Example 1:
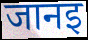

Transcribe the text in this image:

जानइ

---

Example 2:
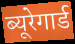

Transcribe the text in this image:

ब्यूरेगार्ड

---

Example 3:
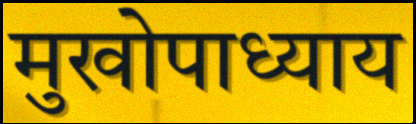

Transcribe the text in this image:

मुखोपाध्‍याय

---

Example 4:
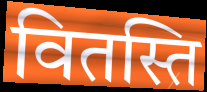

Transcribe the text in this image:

वितस्ति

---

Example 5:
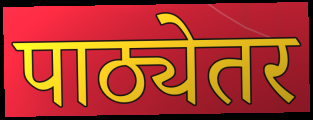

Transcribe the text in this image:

पाठ्येतर